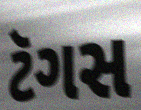
ટૅગસ